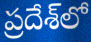
ప్రదేశ్‌లో